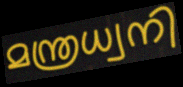
മന്ത്രധ്വനി